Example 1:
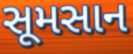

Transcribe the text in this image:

સૂમસાન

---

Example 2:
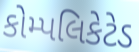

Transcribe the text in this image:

કોમ્પલિકેટેડ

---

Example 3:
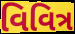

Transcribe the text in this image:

વિવિત્ર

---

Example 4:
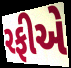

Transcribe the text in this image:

રફીએ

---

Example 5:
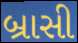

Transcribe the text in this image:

બ્રાસી